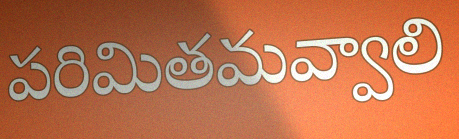
పరిమితమవ్వాలి